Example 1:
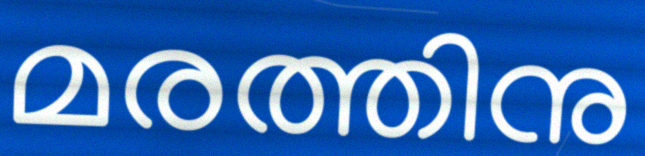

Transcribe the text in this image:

മരത്തിനു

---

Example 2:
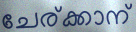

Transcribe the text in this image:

ചേര്ക്കാന്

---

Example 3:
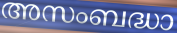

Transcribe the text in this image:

അസംബദ്ധാ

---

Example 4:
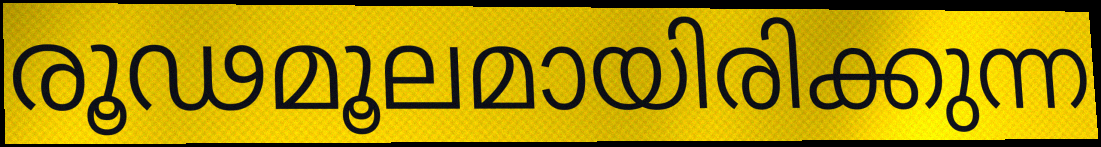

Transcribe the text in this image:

രൂഢമൂലമായിരിക്കുന്ന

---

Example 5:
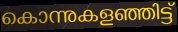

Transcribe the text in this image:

കൊന്നുകളഞ്ഞിട്ട്